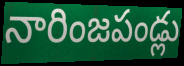
నారింజపండ్లు